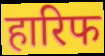
हारिफ